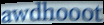
awdhooot